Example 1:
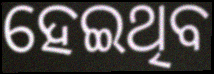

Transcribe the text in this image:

ହେଇଥିବ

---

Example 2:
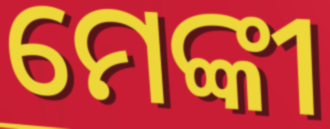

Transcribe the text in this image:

ମେଙ୍କୀ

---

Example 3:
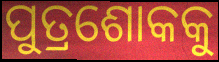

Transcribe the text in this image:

ପୁତ୍ରଶୋକକୁ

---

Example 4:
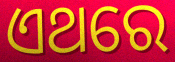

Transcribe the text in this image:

ଏଥରେ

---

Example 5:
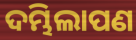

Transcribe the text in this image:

ଦମ୍ଭିଲାପଣ